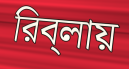
রিব্‌লায়